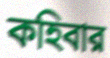
কহিবার